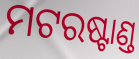
ମଟରଷ୍ଟାଣ୍ଡ